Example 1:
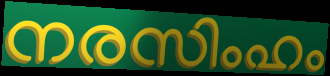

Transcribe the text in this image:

നരസിംഹം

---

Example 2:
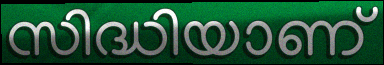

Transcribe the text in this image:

സിദ്ധിയാണ്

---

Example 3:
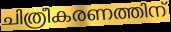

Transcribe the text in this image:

ചിത്രീകരണത്തിന്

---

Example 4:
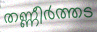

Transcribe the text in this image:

തണ്ണീർത്തട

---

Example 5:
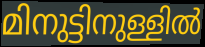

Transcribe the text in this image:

മിനുട്ടിനുള്ളിൽ